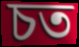
চত